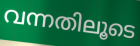
വന്നതിലൂടെ